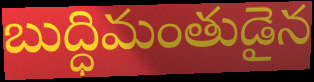
బుద్ధిమంతుడైన